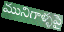
మునిగాళ్ళపై